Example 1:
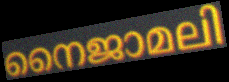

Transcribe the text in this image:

നൈജാമലി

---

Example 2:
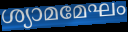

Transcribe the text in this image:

ശ്യാമമേഘം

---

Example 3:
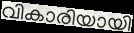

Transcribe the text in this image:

വികാരിയായി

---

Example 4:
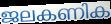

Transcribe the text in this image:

ജലകണിക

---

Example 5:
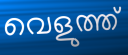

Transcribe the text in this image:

വെളുത്ത്